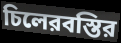
চিলেরবস্তির